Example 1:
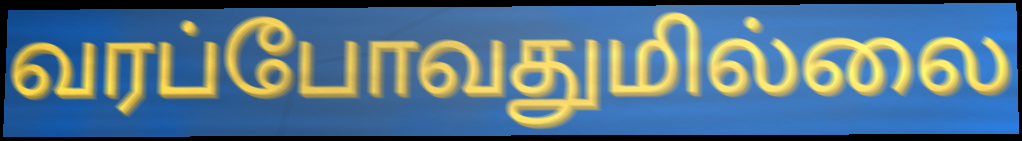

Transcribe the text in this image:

வரப்போவதுமில்லை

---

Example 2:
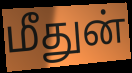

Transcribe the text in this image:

மீதுன்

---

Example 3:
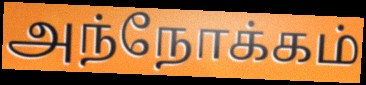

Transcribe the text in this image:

அந்நோக்கம்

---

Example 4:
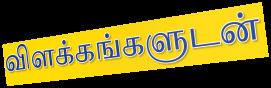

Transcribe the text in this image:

விளக்கங்களுடன்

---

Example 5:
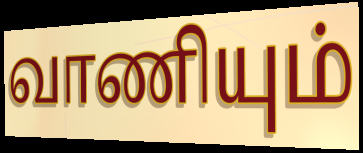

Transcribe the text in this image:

வாணியும்